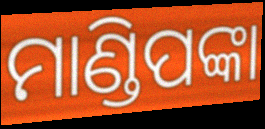
ମାଣ୍ଡିପଙ୍କା